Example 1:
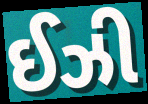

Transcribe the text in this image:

ઈઝી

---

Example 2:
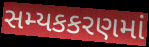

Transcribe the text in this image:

સમ્યકકરણમાં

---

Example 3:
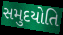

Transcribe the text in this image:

સમુદયોતિ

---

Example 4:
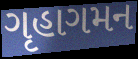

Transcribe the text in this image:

ગૃહાગમન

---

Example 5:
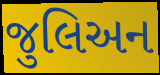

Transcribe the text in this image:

જુલિઅન